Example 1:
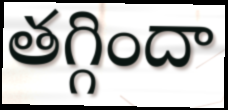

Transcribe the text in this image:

తగ్గిందా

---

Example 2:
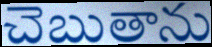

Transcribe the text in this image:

చెబుతాను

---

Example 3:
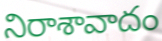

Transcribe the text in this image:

నిరాశావాదం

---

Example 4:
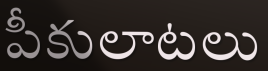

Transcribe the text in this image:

పీకులాటలు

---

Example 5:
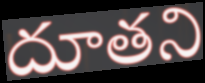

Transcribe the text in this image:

దూతని